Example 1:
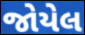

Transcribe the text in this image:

જોયેલ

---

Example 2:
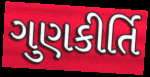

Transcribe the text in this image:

ગુણકીર્તિ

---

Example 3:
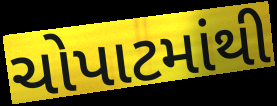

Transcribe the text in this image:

ચોપાટમાંથી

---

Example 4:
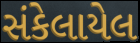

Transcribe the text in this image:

સંકેલાયેલ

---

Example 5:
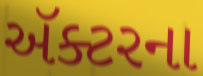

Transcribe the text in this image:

ઍક્ટરના